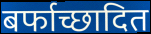
बर्फाच्छादित